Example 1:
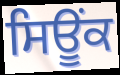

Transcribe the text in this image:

ਸਿਊਂਕ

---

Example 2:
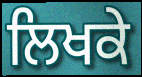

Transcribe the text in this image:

ਲਿਖਕੇ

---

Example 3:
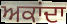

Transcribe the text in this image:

ਅਕਾਂਦਾ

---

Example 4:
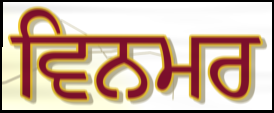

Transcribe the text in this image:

ਵਿਨਮਰ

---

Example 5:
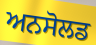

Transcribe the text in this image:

ਅਨਸੋਲਡ